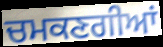
ਚਮਕਣਗੀਆਂ